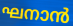
ഘനാൻ